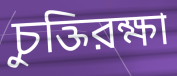
চুক্তিরক্ষা